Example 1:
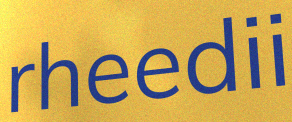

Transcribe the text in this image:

rheedii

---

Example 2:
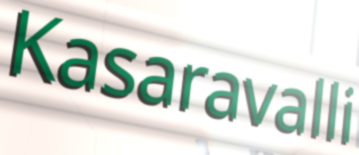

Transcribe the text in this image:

Kasaravalli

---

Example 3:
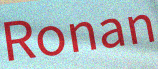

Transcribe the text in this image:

Ronan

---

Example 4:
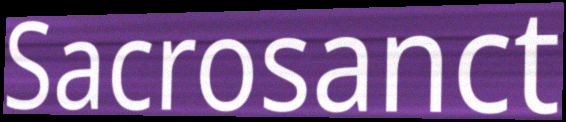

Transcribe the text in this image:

Sacrosanct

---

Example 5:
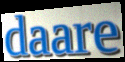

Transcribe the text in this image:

daare